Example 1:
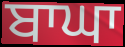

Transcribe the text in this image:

ਬਾਘਾ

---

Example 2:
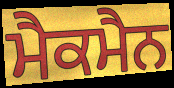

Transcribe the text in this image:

ਮੈਕਮੈਨ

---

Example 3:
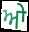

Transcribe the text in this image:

ਆੇ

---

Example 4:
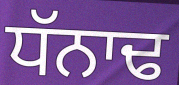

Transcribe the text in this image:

ਧੱਨਾਢ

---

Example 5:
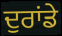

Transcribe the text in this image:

ਦੁਰਾਂਡੇ